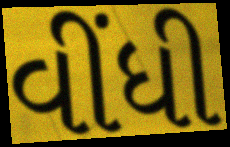
વીંધી